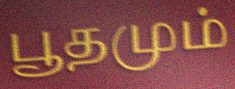
பூதமும்